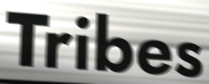
Tribes